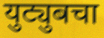
युट्युबचा